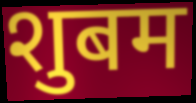
शुबम